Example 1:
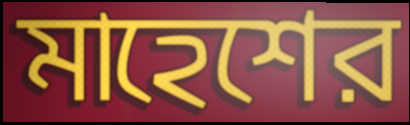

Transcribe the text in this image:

মাহেশের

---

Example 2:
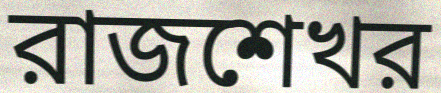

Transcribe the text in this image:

রাজশেখর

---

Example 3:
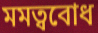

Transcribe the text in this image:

মমত্ববোধ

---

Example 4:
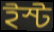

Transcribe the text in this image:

ইস্ট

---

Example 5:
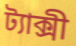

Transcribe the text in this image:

ট্যাক্সী